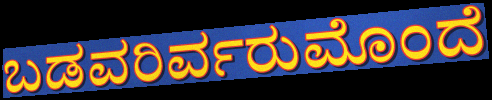
ಬಡವರಿರ್ವರುಮೊಂದೆ